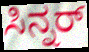
ಸಿನ್ನರ್